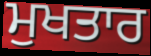
ਮੁਖਤਾਰ